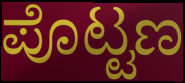
ಪೊಟ್ಟಣ